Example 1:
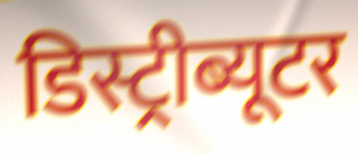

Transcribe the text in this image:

डिस्ट्रीब्यूटर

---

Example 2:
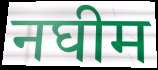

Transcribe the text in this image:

नघीम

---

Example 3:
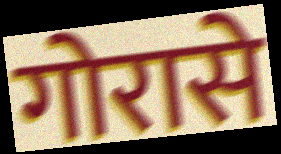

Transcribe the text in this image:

गोरासे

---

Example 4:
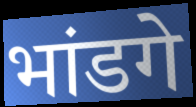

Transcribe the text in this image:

भांडगे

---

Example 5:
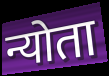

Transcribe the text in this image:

न्योता